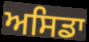
ਅਸਿਡਾ